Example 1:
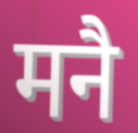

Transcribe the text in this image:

मनै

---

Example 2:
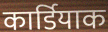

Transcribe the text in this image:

कार्डियाक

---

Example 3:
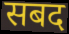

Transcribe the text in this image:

सबद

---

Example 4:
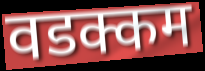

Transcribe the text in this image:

वडक्कम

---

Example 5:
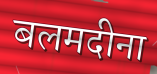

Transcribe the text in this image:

बलमदीना